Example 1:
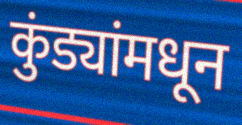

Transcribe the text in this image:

कुंड्यांमधून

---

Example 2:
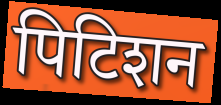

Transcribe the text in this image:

पिटिशन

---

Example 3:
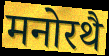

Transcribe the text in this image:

मनोरथै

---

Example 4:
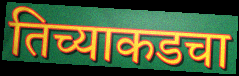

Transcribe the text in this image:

तिच्याकडचा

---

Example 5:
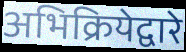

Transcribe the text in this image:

अभिक्रियेद्वारे